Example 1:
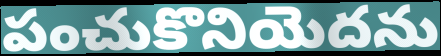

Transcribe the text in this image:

పంచుకొనియెదను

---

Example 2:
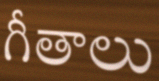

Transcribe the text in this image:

గీతాలు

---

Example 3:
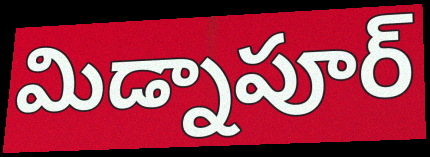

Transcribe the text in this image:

మిడ్నాపూర్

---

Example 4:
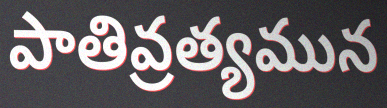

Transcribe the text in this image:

పాతివ్రత్యమున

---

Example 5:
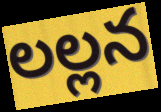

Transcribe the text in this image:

లల్లన